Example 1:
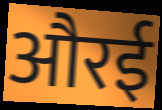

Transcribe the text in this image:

औरई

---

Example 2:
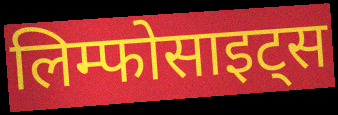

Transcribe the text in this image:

लिम्फोसाइट्स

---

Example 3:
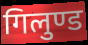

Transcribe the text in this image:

गिलुण्ड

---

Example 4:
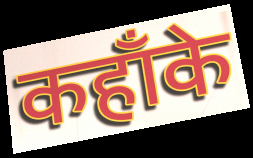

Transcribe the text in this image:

कहाँके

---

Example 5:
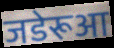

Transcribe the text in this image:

जडेरूआ